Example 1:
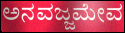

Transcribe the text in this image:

ಅನವಜ್ಜಮೇವ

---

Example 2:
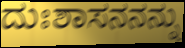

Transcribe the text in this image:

ದುಃಶಾಸನನನ್ನು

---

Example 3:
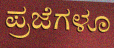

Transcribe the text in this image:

ಪ್ರಜೆಗಳೂ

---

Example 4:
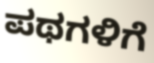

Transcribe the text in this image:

ಪಥಗಳಿಗೆ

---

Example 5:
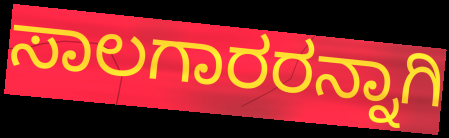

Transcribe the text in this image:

ಸಾಲಗಾರರನ್ನಾಗಿ